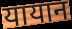
यायान